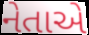
નેતાએ